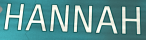
HANNAH